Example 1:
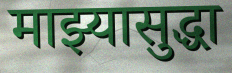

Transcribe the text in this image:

माझ्यासुद्धा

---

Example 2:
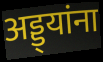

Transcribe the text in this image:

अड्ड्यांना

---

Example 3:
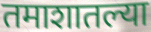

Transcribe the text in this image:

तमाशातल्या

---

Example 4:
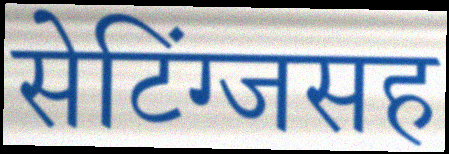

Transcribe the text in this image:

सेटिंग्जसह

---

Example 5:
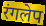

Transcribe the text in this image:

रंगलेप